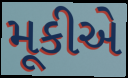
મૂકીએ